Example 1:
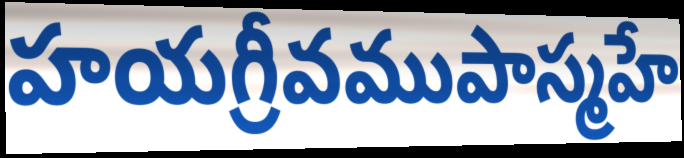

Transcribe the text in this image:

హయగ్రీవముపాస్మహే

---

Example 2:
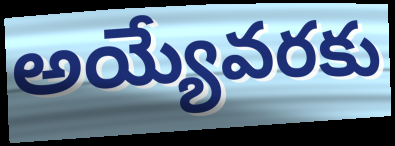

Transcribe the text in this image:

అయ్యేవరకు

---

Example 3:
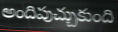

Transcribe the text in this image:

అందిపుచ్చుకుంది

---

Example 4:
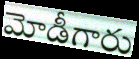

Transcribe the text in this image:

మోడీగారు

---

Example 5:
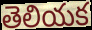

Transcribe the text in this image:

తెలియక